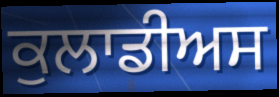
ਕੁਲਾਡੀਅਸ